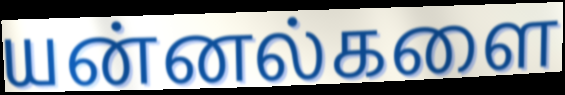
யன்னல்களை